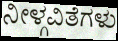
ನೀಳ್ಗವಿತೆಗಳು